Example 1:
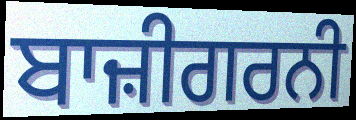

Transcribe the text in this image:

ਬਾਜ਼ੀਗਰਨੀ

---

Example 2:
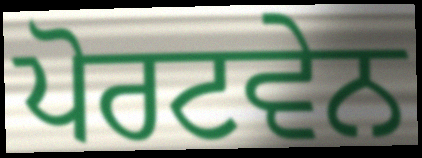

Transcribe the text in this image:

ਪੋਰਟਵੇਨ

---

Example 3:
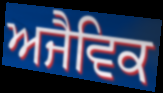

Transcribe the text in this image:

ਅਜੈਵਿਕ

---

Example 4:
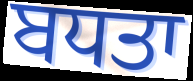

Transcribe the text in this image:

ਬਧਤਾ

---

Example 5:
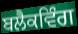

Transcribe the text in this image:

ਬਲੈਕਵਿੰਗ